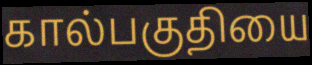
கால்பகுதியை